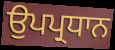
ਉਪਪ੍ਰਧਾਨ